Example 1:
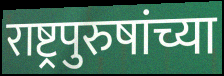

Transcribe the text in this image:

राष्ट्रपुरुषांच्या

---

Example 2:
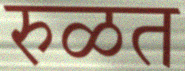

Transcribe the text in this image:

रुळत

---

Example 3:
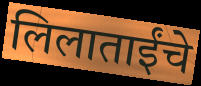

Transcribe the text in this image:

लिलाताईंचे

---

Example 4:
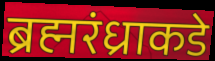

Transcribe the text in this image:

ब्रह्मरंध्राकडे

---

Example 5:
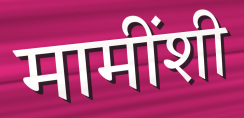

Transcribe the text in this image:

मामींशी